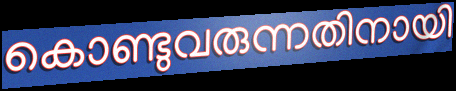
കൊണ്ടുവരുന്നതിനായി